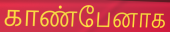
காண்பேனாக